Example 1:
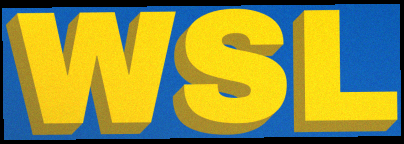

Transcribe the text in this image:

WSL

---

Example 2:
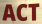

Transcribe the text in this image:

ACT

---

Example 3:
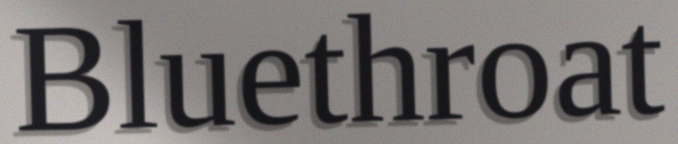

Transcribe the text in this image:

Bluethroat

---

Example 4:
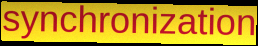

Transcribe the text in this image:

synchronization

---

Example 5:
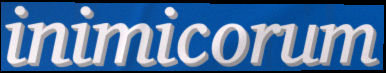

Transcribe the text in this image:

inimicorum